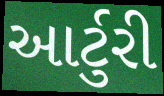
આર્ટુરી